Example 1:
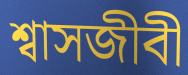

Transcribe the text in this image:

শ্বাসজীবী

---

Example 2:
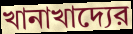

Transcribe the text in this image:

খানাখাদ্যের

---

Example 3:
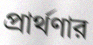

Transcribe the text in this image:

প্রার্থণার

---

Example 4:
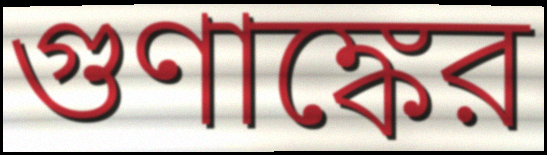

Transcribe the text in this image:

গুণাঙ্কের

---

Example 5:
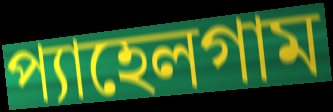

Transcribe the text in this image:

প্যাহেলগাম